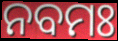
ନବମଃ